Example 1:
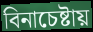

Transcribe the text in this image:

বিনাচেষ্টায়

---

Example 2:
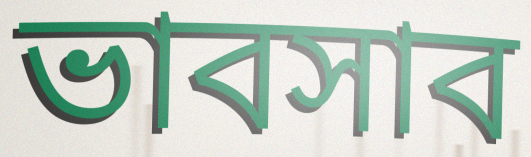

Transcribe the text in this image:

ভাবসাব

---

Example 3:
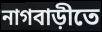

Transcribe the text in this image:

নাগবাড়ীতে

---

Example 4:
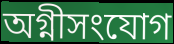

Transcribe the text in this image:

অগ্নীসংযোগ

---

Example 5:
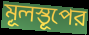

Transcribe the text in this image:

মূলস্তূপের